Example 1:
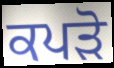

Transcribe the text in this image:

ਕਪੜੋ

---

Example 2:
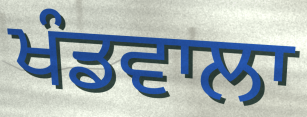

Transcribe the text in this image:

ਖੰਡਵਾਲਾ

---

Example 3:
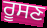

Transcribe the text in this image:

ਰੂਸਣ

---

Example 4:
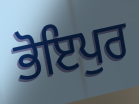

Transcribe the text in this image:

ਭੋਇਪੁਰ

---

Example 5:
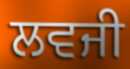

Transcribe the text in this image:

ਲਵਜੀ